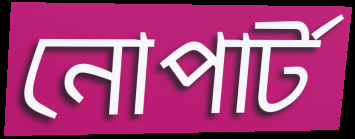
নোপার্ট